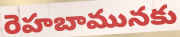
రెహబామునకు